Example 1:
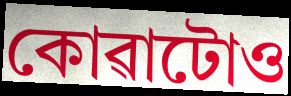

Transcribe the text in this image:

কোৱাটোও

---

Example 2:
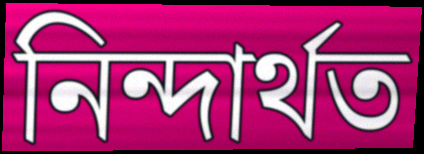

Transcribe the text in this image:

নিন্দাৰ্থত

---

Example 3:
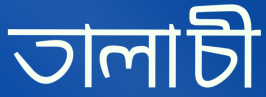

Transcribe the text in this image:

তালাচী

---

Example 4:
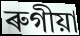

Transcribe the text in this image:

ৰুগীয়া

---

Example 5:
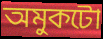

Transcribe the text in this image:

অমুকটো